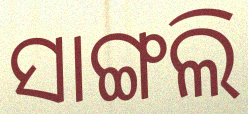
ସାଙ୍ଗଲି